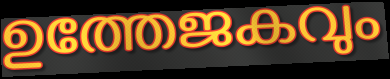
ഉത്തേജകവും